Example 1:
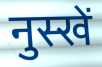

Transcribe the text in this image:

नुस्खें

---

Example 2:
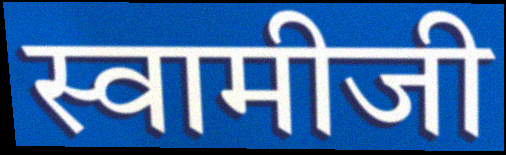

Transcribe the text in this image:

स्‍वामीजी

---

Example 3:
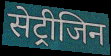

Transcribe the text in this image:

सेट्रीजिन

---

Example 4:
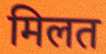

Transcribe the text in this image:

मिलत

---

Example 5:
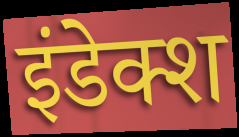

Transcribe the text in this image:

इंडेक्श